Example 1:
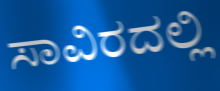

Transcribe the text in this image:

ಸಾವಿರದಲ್ಲಿ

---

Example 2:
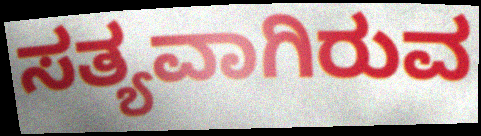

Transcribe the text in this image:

ಸತ್ಯವಾಗಿರುವ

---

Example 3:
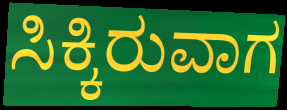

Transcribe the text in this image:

ಸಿಕ್ಕಿರುವಾಗ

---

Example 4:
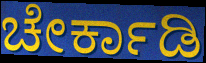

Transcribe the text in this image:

ಚೇರ್ಕಾಡಿ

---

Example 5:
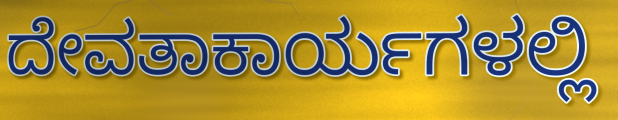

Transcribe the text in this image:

ದೇವತಾಕಾರ್ಯಗಳಲ್ಲಿ